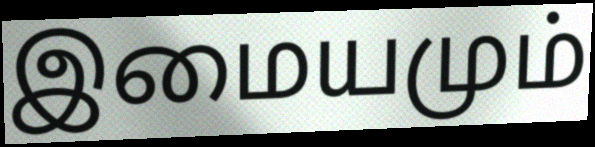
இமையமும்